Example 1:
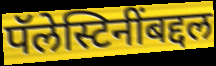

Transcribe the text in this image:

पॅलेस्टिनींबद्दल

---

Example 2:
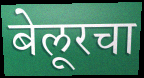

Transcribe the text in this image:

बेलूरचा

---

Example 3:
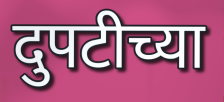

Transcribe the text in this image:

दुपटीच्या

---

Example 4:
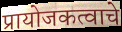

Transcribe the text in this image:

प्रायोजकत्वाचे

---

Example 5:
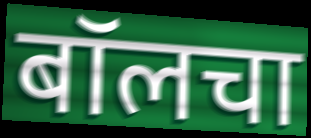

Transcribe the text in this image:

बॉलचा